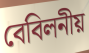
বেবিলনীয়